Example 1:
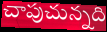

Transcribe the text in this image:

చాపుచున్నది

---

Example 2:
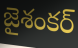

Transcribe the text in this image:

జైశంకర్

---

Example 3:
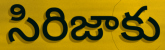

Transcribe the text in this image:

సిరిజాకు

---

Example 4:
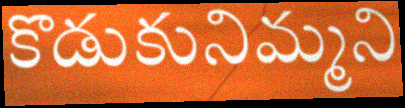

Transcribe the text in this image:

కొడుకునిమ్మని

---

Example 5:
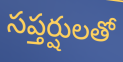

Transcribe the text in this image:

సప్తర్షులతో